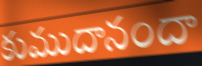
కుముదానందా